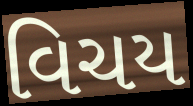
વિચય